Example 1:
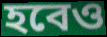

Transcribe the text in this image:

হবেও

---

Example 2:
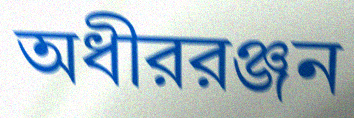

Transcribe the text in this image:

অধীররঞ্জন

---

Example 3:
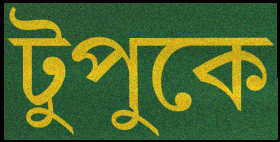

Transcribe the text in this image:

টুপুকে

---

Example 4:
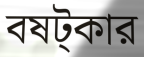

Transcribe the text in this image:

বষট্কার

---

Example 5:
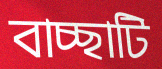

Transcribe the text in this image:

বাচ্ছাটি